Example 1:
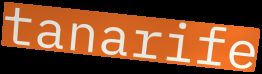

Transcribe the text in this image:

tanarife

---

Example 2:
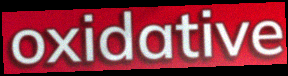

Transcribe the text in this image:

oxidative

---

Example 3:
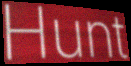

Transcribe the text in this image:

Hunt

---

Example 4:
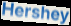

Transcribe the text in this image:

Hershey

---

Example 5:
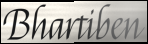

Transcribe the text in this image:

Bhartiben